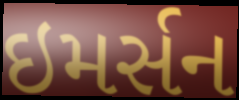
ઇમર્સન